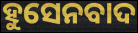
ହୁସେନବାଦ